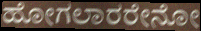
ಹೋಗಲಾರರೇನೋ